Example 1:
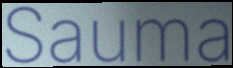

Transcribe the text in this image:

Sauma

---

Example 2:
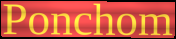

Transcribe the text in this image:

Ponchom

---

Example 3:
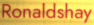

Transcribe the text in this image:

Ronaldshay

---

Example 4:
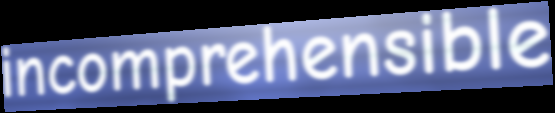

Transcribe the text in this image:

incomprehensible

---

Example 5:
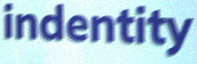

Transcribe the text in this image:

indentity